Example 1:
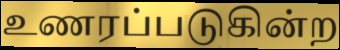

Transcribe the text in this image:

உணரப்படுகின்ற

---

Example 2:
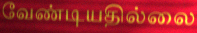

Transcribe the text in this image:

வேண்டியதில்லை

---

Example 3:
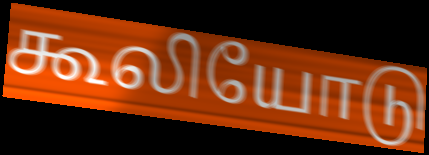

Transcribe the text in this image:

கூலியோடு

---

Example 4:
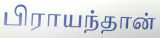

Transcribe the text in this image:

பிராயந்தான்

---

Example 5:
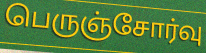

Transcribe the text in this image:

பெருஞ்சோர்வு